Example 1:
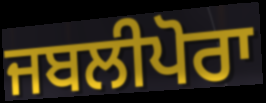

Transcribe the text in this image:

ਜਬਲੀਪੋਰਾ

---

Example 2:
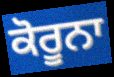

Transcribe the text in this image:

ਕੋਰੂਨਾ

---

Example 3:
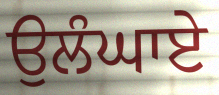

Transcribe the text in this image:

ਉਲੰਘਾਏ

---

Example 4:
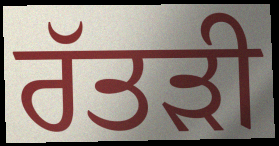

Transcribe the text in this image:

ਰੱਤੜੀ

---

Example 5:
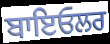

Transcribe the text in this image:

ਬਾਇਓਲਰ